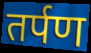
तर्पण